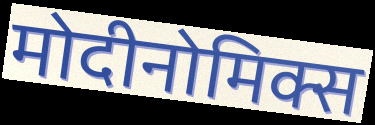
मोदीनोमिक्स